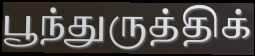
பூந்துருத்திக்